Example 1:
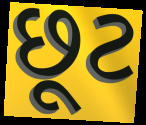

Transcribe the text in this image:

છૂટ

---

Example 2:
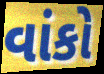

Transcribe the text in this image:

વાંકો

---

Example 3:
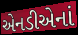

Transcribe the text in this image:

એનડીએનાં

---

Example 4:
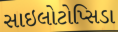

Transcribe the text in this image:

સાઇલોટોપ્સિડા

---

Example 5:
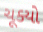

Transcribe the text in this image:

ચૂક્યો